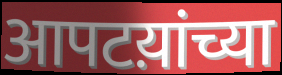
आपटय़ांच्या